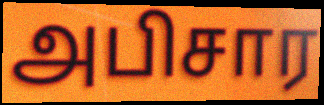
அபிசார